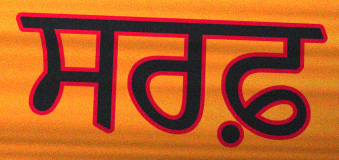
ਸਰਫ਼